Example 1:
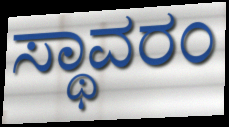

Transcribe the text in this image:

ಸ್ಥಾವರಂ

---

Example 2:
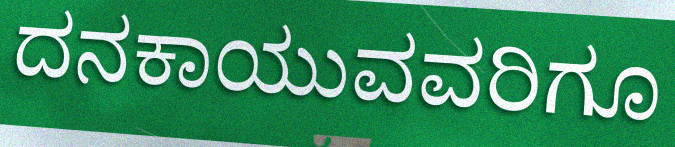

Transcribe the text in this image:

ದನಕಾಯುವವರಿಗೂ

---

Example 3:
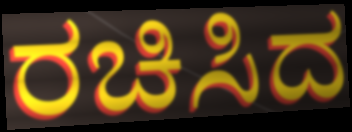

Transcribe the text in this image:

ರಚಿಸಿದ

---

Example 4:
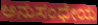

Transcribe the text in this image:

ಅನುಸಂಧೇಯ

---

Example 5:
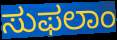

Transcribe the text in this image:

ಸುಫಲಾಂ